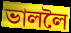
ভাললৈ